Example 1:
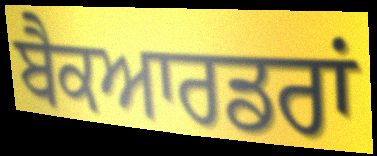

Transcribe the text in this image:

ਬੈਕਆਰਡਰਾਂ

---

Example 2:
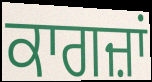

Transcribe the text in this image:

ਕਾਗਜ਼ਾਂ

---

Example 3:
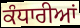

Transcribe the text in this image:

ਕੰਧਾਰੀਆਂ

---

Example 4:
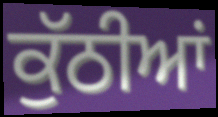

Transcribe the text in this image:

ਕੁੱਠੀਆਂ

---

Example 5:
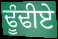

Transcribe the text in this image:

ਢੂੰਢੀਏ